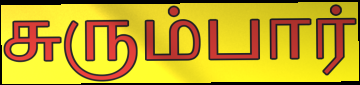
சுரும்பார்